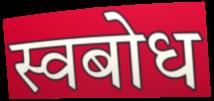
स्वबोध